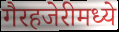
गैरहजेरीमध्ये